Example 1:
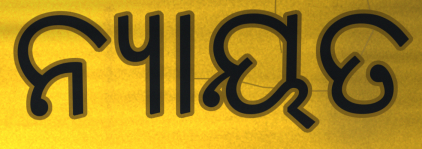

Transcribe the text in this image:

ନ୍ୟାୟତ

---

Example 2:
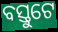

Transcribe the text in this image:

ବସ୍ତୁଟେ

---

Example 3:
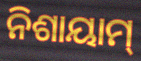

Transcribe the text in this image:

ନିଶାୟାମ୍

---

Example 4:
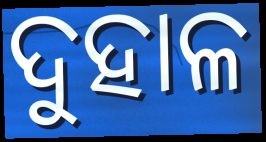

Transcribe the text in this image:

ଦୁହାଳ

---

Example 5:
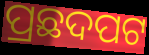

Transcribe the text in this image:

ପ୍ରଛଦପଟ